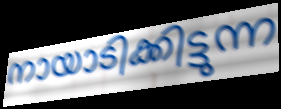
നായാടിക്കിട്ടുന്ന